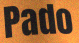
Pado